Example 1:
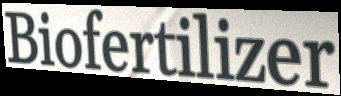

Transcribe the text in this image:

Biofertilizer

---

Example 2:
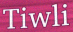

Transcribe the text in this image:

Tiwli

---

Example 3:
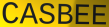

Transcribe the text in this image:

CASBEE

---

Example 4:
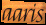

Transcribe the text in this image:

aaris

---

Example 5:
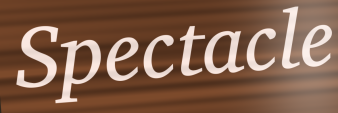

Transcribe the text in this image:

Spectacle